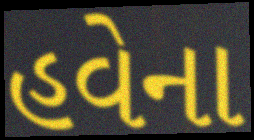
હવેના